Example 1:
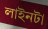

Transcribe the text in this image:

লাইনটা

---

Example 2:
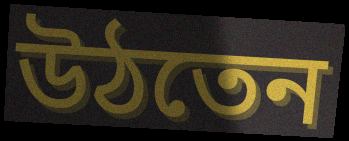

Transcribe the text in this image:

উঠতেন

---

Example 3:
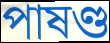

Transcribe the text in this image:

পাষণ্ড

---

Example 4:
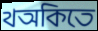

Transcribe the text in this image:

থঅকিতে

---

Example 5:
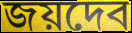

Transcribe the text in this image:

জয়দেব